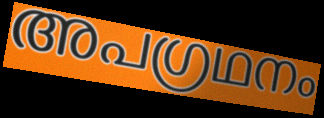
അപഗ്രഥനം